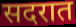
सदरात